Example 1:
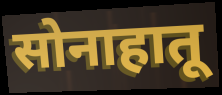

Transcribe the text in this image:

सोनाहातू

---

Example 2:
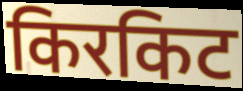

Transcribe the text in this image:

किरकिट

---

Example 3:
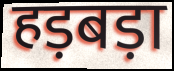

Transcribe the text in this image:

हड़बड़ा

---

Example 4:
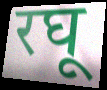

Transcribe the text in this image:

रघू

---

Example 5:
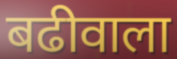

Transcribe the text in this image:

बढीवाला